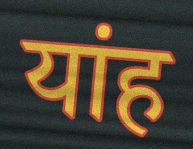
यांह